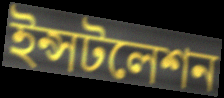
ইন্সটলেশন